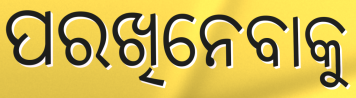
ପରଖିନେବାକୁ